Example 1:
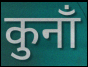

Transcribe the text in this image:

कुनाँ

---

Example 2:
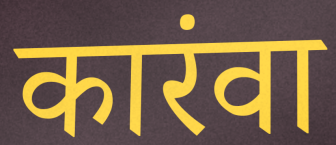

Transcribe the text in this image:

कारंवा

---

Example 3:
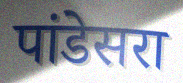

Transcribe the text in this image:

पांडेसरा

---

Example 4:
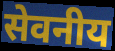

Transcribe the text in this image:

सेवनीय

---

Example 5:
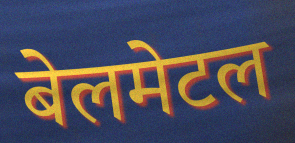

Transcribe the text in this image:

बेलमेटल